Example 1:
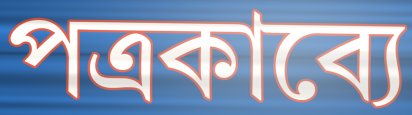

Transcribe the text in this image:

পত্রকাব্যে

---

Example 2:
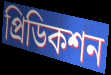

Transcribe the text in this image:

প্রিডিকশন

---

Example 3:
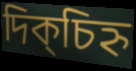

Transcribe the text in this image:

দিক্‌চিহ্ন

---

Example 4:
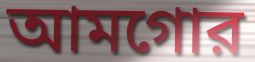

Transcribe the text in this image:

আমগোর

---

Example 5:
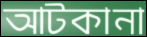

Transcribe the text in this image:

আটকানা